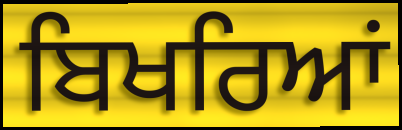
ਬਿਖਰਿਆਂ